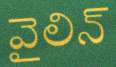
వైలిన్